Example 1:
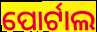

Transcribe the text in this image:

ପୋର୍ଟାଲ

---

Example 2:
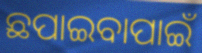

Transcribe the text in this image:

ଛପାଇବାପାଇଁ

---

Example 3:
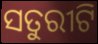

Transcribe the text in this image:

ସତୁରୀଟି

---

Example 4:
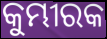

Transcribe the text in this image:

କୁମ୍ଭୀରକ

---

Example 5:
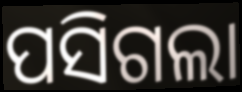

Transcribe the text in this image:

ପସିଗଲା